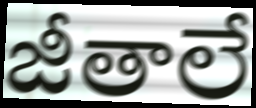
జీతాలే